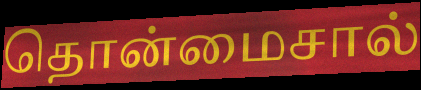
தொன்மைசால்